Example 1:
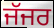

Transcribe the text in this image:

ਜੱਜਰ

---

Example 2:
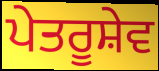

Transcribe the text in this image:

ਪੇਤਰੂਸ਼ੇਵ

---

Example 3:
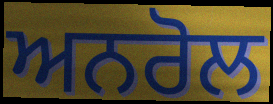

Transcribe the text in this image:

ਅਨਰੋਲ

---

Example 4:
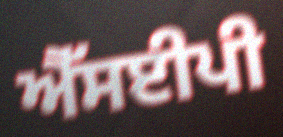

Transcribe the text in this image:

ਐੱਸਈਪੀ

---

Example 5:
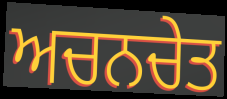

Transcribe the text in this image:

ਅਚਨਚੇਤ